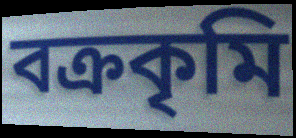
বক্রকৃমি